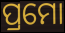
ପ୍ରମୋ